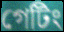
গেটিং